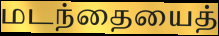
மடந்தையைத்